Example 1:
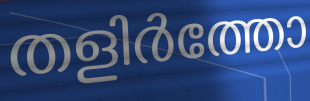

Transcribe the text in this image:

തളിർത്തോ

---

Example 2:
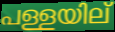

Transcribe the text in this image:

പള്ളയില്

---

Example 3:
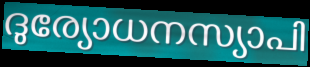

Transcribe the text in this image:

ദുര്യോധനസ്യാപി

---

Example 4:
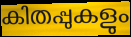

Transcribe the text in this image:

കിതപ്പുകളും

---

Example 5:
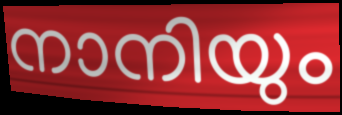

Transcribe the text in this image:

നാനിയും